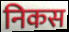
निकस